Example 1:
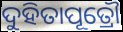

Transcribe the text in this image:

ଦୁହିତାପୂତ୍ରୌ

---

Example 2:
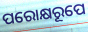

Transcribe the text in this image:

ପରୋକ୍ଷରୂପେ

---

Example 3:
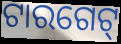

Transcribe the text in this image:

ଟାରଗେଟ୍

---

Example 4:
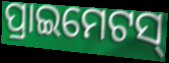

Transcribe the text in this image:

ପ୍ରାଇମେଟସ୍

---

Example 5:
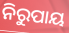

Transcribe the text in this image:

ନିରୁପାୟ